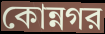
কোন্নগর